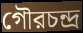
গৌরচন্দ্র